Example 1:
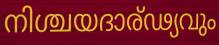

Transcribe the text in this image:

നിശ്ചയദാര്ഢ്യവും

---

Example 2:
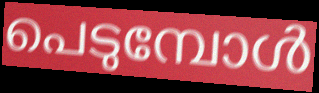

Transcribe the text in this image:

പെടുമ്പോൾ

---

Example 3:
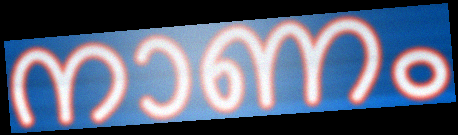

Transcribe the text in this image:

നാണം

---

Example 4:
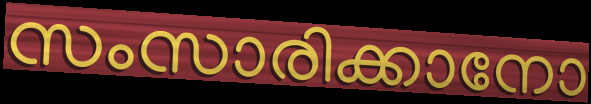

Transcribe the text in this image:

സംസാരിക്കാനോ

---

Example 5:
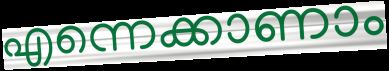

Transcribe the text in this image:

എന്നെക്കാണാം